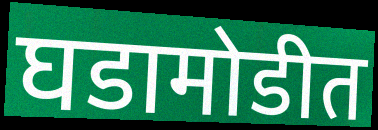
घडामोडीत